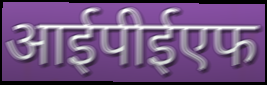
आईपीईएफ